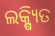
ଲକ୍ଷ୍ୟିତ